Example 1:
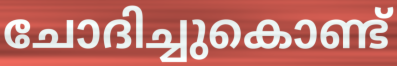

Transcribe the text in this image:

ചോദിച്ചുകൊണ്ട്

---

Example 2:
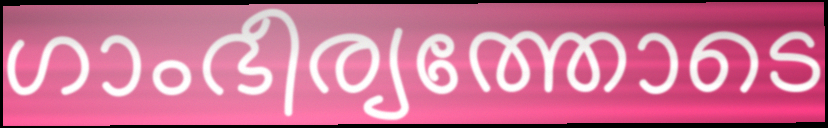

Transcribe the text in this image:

ഗാംഭീര്യത്തോടെ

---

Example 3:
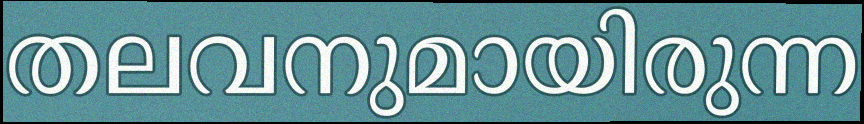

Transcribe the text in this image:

തലവനുമായിരുന്ന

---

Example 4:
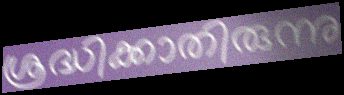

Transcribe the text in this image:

ശ്രദ്ധിക്കാതിരുന്നു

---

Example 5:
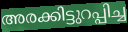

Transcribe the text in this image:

അരക്കിട്ടുറപ്പിച്ച